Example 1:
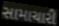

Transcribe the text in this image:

સામાચારી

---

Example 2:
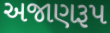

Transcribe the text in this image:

અજાણરૂપ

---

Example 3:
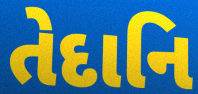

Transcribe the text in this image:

તેદાનિ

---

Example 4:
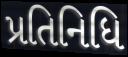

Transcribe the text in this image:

પ્રતિનિધિ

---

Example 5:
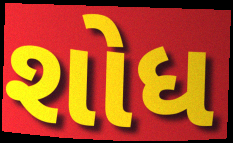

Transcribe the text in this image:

શોધ